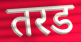
तरड